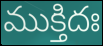
ముక్తిదః